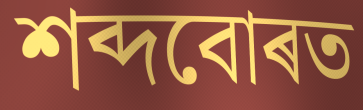
শব্দবোৰত